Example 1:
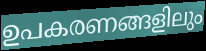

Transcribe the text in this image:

ഉപകരണങ്ങളിലും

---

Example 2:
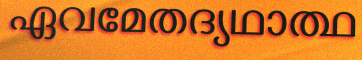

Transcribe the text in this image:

ഏവമേതദ്യഥാത്ഥ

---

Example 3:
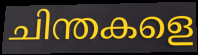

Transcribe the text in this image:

ചിന്തകളെ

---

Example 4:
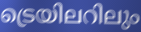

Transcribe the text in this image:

ട്രെയിലറിലും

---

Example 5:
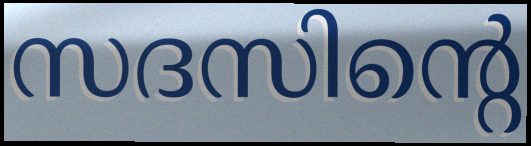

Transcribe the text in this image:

സദസിന്റെ